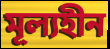
মূল্যহীন